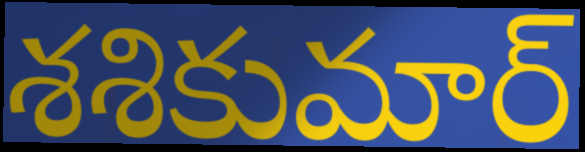
శశికుమార్